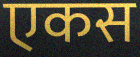
एकस